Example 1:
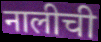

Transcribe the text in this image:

नालीची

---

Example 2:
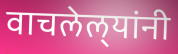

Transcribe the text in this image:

वाचलेल्यांनी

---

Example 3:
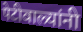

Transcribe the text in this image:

पेटीवाल्यांनी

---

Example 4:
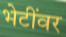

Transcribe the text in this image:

भेटींवर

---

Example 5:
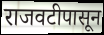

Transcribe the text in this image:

राजवटीपासून